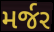
મર્જર